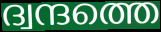
ദ്വന്ദത്തെ